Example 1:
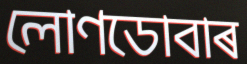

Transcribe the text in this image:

লোণডোবাৰ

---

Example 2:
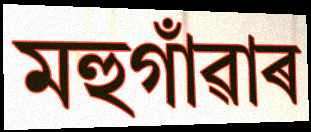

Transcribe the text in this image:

মহুগাঁৱাৰ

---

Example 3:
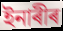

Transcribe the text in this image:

ইনাৰীৰ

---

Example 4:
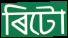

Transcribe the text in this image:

ৰিটো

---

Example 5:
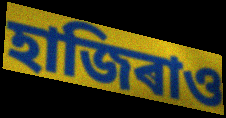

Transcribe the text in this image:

হাজিৰাও